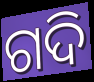
ଗଦି